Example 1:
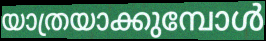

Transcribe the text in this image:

യാത്രയാക്കുമ്പോൾ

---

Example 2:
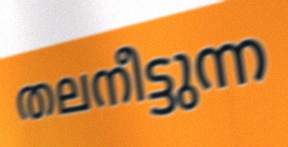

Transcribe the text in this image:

തലനീട്ടുന്ന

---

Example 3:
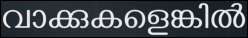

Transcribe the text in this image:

വാക്കുകളെങ്കിൽ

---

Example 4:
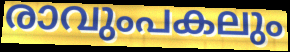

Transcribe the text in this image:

രാവുംപകലും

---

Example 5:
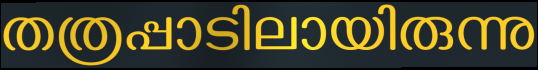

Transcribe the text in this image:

തത്രപ്പാടിലായിരുന്നു